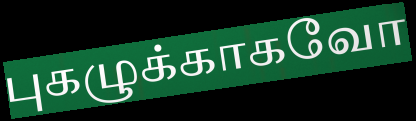
புகழுக்காகவோ